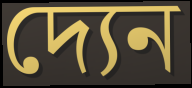
দ্যেন